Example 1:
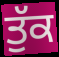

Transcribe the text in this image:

ਤੁੱਕ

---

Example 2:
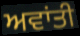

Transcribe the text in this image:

ਅਵਾਂਤੀ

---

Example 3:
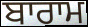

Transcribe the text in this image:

ਬਾਰਾਮ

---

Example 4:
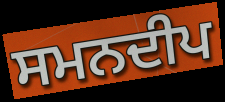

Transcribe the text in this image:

ਸਮਨਦੀਪ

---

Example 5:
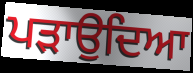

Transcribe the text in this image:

ਪੜਾਉਦਿਆ